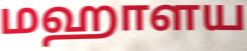
மஹாளய